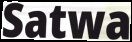
Satwa